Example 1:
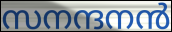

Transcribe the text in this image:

സനന്ദനൻ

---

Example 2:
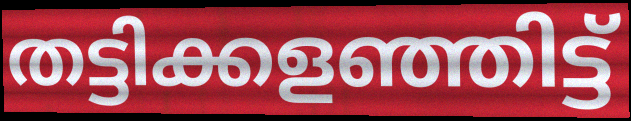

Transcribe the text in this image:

തട്ടിക്കളഞ്ഞിട്ട്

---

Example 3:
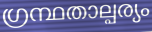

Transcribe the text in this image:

ഗ്രന്ഥതാല്പര്യം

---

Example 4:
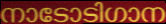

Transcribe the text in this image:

നാടോടിഗാന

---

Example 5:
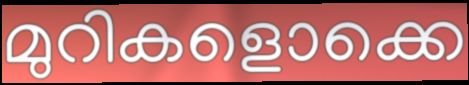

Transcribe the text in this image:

മുറികളൊക്കെ